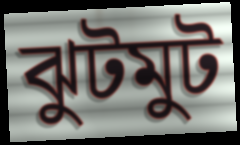
ঝুটমুট